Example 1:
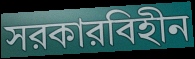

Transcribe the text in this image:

সরকারবিহীন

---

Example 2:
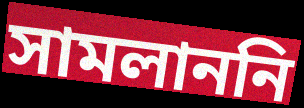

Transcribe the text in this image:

সামলাননি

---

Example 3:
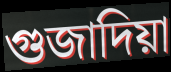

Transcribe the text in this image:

গুজাদিয়া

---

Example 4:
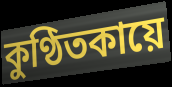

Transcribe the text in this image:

কুণ্ঠিতকায়ে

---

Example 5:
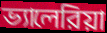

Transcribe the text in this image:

ভ্যালেরিয়া